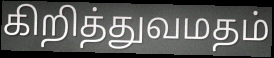
கிறித்துவமதம்